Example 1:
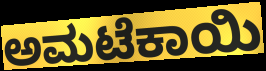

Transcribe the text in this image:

ಅಮಟೆಕಾಯಿ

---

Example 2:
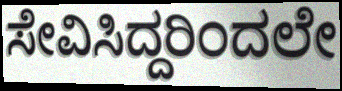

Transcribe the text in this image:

ಸೇವಿಸಿದ್ದರಿಂದಲೇ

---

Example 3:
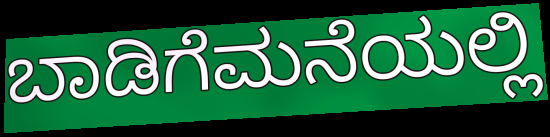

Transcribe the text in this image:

ಬಾಡಿಗೆಮನೆಯಲ್ಲಿ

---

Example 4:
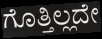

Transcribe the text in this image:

ಗೊತ್ತಿಲ್ಲದೇ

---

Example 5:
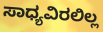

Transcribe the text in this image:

ಸಾಧ್ಯವಿರಲಿಲ್ಲ